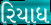
રિયાધ